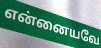
என்னையவே